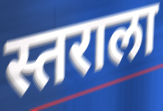
स्तराला